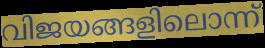
വിജയങ്ങളിലൊന്ന്